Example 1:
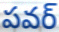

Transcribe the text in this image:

పవర్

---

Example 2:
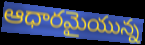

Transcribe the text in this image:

ఆధారమైయున్న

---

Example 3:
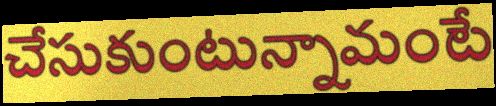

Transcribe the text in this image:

చేసుకుంటున్నామంటే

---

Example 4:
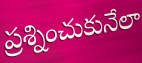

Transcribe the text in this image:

ప్రశ్నించుకునేలా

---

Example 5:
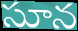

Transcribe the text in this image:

సూన